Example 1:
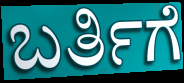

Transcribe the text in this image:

ಬರ್ತಿಗೆ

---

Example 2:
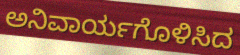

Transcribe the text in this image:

ಅನಿವಾರ್ಯಗೊಳಿಸಿದ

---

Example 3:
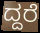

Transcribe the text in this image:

ದ್ದರೆ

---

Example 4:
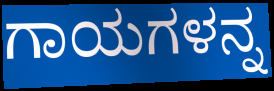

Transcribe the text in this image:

ಗಾಯಗಳನ್ನ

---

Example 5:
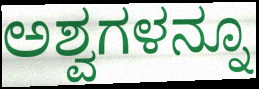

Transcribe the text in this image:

ಅಶ್ವಗಳನ್ನೂ